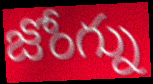
జోంగ్ను